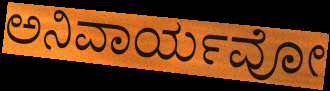
ಅನಿವಾರ್ಯವೋ